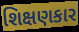
શિક્ષણકાર